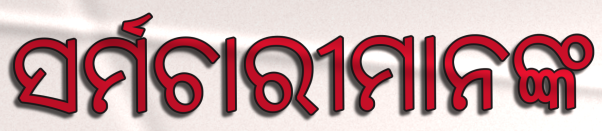
ସର୍ମଚାରୀମାନଙ୍କ